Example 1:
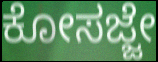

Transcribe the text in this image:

ಕೋಸಜ್ಜೇ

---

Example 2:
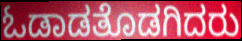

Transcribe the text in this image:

ಓಡಾಡತೊಡಗಿದರು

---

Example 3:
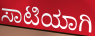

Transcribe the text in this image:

ಸಾಟಿಯಾಗಿ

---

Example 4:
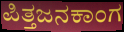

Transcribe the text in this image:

ಪಿತ್ತಜನಕಾಂಗ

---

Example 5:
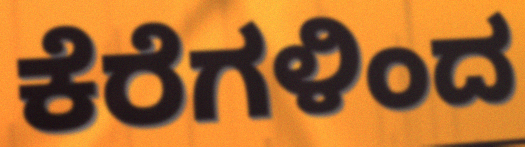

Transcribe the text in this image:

ಕೆರೆಗಳಿಂದ